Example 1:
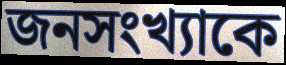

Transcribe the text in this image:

জনসংখ্যাকে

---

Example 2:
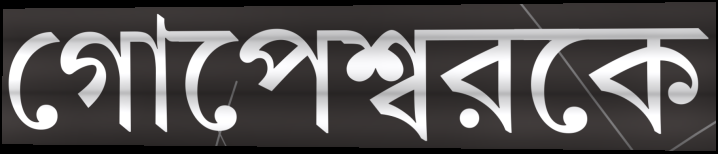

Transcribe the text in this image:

গোপেশ্বরকে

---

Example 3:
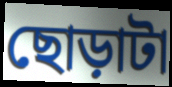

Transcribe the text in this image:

ছোড়াটা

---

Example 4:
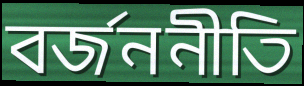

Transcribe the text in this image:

বর্জননীতি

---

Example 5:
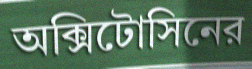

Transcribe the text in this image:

অক্সিটোসিনের